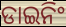
ଡାଇନିଂ